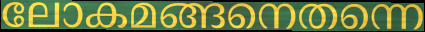
ലോകമങ്ങനെതന്നെ